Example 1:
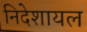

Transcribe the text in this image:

निदेशायल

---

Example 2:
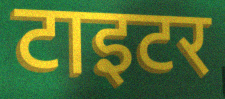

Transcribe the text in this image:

टाइटर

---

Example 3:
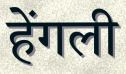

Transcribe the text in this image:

हेंगली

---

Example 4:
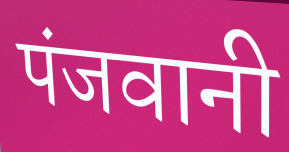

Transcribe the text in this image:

पंजवानी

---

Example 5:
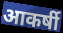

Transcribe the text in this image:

आकर्षी